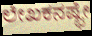
ಲೇಖಕನಷ್ಟೇ